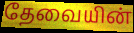
தேவையின்